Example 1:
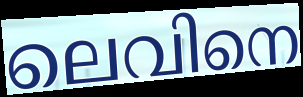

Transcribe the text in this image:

ലെവിനെ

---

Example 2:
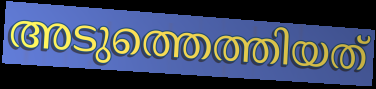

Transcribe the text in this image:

അടുത്തെത്തിയത്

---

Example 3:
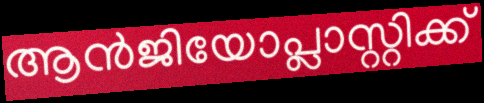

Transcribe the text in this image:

ആൻജിയോപ്ലാസ്റ്റിക്ക്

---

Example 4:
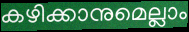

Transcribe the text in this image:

കഴിക്കാനുമെല്ലാം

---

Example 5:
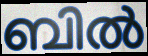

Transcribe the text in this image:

ബിൽ